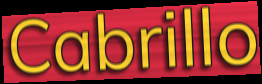
Cabrillo